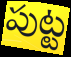
పుట్ట